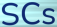
SCs